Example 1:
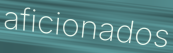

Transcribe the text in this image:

aficionados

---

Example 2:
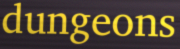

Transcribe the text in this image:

dungeons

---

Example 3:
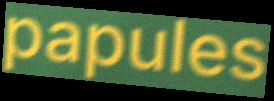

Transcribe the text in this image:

papules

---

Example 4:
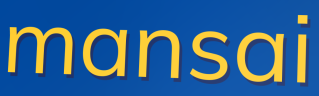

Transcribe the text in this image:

mansai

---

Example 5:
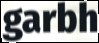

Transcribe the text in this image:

garbh